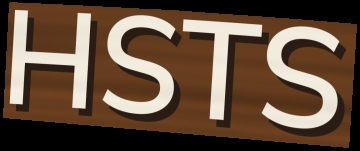
HSTS